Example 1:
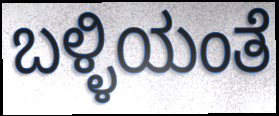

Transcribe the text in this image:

ಬಳ್ಳಿಯಂತೆ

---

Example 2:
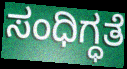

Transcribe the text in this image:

ಸಂಧಿಗ್ಧತೆ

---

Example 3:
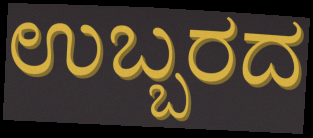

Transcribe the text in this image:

ಉಬ್ಬರದ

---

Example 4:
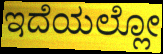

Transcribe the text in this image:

ಇದೆಯಲ್ಲೋ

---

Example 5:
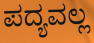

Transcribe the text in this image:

ಪದ್ಯವಲ್ಲ